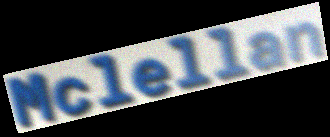
Mclellan